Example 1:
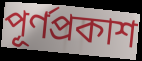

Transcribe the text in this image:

পূর্ণপ্রকাশ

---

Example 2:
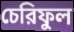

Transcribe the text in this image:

চেরিফুল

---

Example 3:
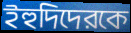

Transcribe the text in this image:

ইহুদিদেরকে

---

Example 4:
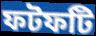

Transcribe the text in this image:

ফটফটি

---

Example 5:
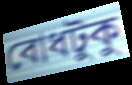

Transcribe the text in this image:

বোধটুকু